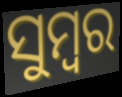
ସୁମ୍ବର